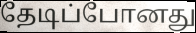
தேடிப்போனது